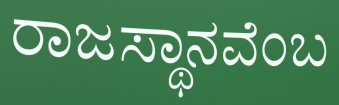
ರಾಜಸ್ಥಾನವೆಂಬ